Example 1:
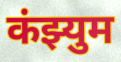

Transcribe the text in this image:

कंझ्युम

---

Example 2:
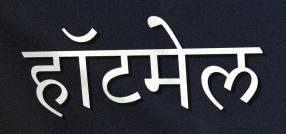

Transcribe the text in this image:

हॉटमेल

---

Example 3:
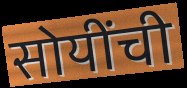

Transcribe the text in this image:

सोयींची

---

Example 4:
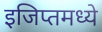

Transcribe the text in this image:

इजिप्तमध्ये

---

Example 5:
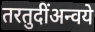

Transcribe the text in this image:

तरतुदींअन्वये